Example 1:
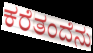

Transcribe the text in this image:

ಕರೆತಂದೆನು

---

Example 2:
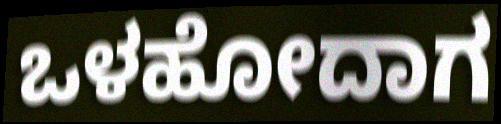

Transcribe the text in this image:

ಒಳಹೋದಾಗ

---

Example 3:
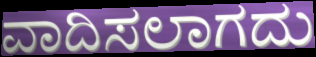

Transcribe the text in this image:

ವಾದಿಸಲಾಗದು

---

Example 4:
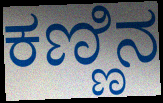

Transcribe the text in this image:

ಕಣ್ಣಿನ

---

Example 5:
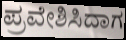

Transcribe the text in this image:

ಪ್ರವೇಶಿಸಿದಾಗ